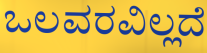
ಒಲವರವಿಲ್ಲದೆ